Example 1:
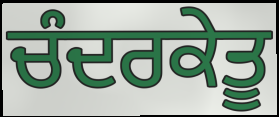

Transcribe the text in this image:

ਚੰਦਰਕੇਤੂ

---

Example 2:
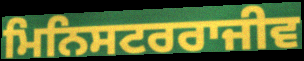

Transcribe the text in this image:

ਮਿਨਿਸਟਰਰਾਜੀਵ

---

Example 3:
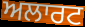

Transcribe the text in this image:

ਅਲਾਰਟ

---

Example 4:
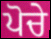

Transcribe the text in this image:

ਪੋਚੇ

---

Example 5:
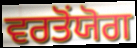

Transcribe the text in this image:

ਵਰਤੋਂਯੋਗ